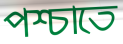
পশ্চাতে